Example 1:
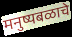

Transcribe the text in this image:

मनुष्यबळाचे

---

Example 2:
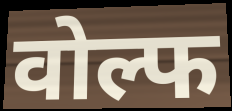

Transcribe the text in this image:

वोल्फ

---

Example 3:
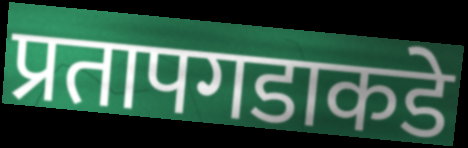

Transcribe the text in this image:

प्रतापगडाकडे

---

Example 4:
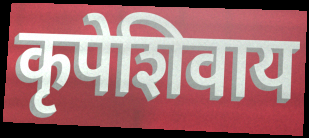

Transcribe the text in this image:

कृपेशिवाय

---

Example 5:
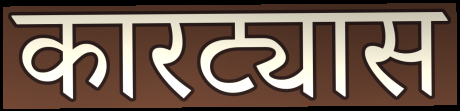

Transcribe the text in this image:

कारट्यास